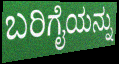
ಬರಿಗೈಯನ್ನು